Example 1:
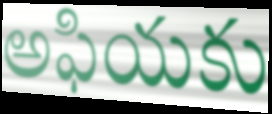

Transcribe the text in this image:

అఫియకు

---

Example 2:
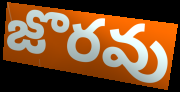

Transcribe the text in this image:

జొరవు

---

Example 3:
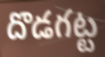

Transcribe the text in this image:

దొడగట్ట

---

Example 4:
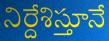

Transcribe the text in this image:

నిర్దేశిస్తూనే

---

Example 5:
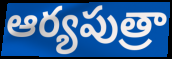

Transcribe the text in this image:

ఆర్యపుత్రా